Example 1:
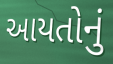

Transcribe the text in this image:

આયતોનું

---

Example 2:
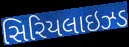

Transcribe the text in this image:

સિરિયલાઇઝ્ડ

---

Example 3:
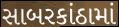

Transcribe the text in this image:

સાબરકાંઠામાં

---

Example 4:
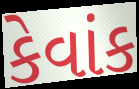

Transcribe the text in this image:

કેવાંક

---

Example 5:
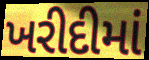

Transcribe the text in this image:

ખરીદીમાં